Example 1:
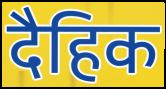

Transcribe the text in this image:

दैहिक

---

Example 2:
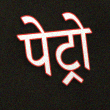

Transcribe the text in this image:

पेट्रो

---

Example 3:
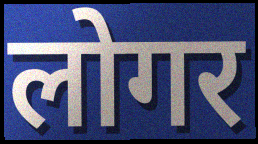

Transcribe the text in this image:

लोगर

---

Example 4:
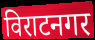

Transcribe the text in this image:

विराटनगर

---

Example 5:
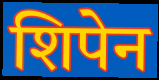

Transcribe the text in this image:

शिपेन